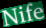
Nife